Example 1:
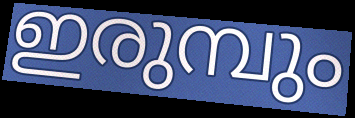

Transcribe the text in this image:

ഇരുമ്പും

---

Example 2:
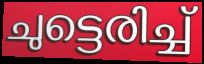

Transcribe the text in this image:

ചുട്ടെരിച്ച്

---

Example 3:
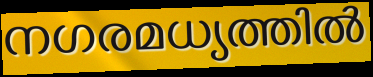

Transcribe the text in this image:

നഗരമധ്യത്തിൽ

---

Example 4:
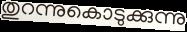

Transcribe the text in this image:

തുറന്നുകൊടുക്കുന്നു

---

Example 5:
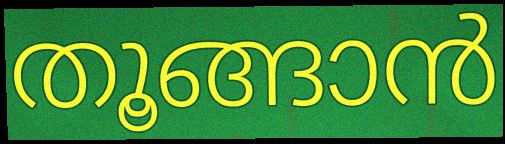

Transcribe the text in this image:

തൂങ്ങാൻ